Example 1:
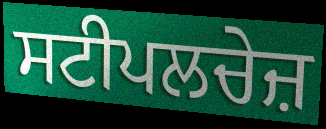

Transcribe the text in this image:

ਸਟੀਪਲਚੇਜ਼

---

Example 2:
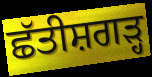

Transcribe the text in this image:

ਛੱਤੀਸ਼ਗੜ੍ਹ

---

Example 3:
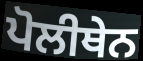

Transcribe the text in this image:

ਪੋਲੀਥੇਨ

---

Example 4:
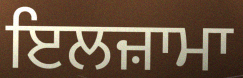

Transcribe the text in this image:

ਇਲਜ਼ਾਮਾ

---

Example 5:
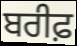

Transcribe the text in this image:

ਬਰੀਫ਼